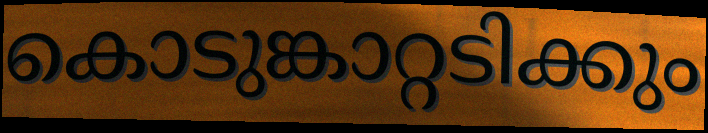
കൊടുങ്കാറ്റടിക്കും